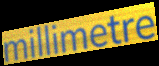
millimetre